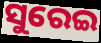
ସୁରେଇ